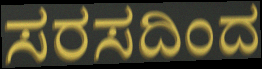
ಸರಸದಿಂದ